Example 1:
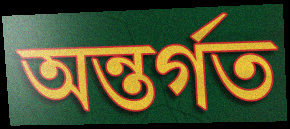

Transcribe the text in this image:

অন্তৰ্গত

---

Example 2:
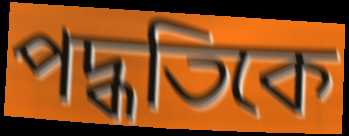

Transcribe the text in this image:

পদ্ধতিকে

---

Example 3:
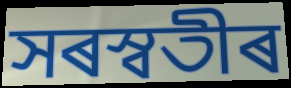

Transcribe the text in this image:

সৰস্বতীৰ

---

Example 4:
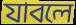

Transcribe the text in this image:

যাবলে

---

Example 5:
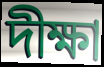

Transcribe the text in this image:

দীক্ষা